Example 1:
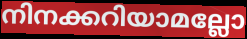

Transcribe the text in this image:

നിനക്കറിയാമല്ലോ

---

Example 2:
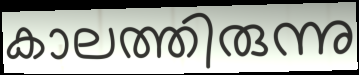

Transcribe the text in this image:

കാലത്തിരുന്നു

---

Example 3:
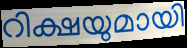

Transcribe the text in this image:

റിക്ഷയുമായി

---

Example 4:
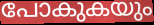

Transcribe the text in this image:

പോകുകയും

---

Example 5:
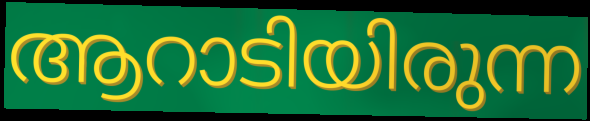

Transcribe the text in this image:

ആറാടിയിരുന്ന